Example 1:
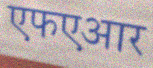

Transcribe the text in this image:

एफएआर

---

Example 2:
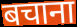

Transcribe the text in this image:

बचाना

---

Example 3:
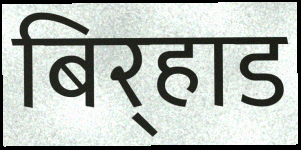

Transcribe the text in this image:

बिर्‍हाड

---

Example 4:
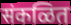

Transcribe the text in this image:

संकळित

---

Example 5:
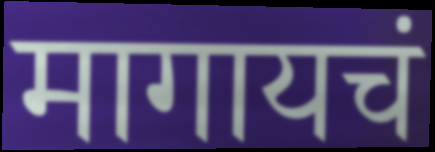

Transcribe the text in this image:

मागायचं